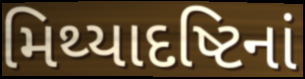
મિથ્યાદષ્ટિનાં